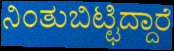
ನಿಂತುಬಿಟ್ಟಿದ್ದಾರೆ